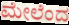
ಮೇಲೆಂದ